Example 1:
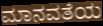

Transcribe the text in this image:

ಮಾನವತೆಯ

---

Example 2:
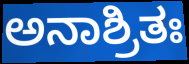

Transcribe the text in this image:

ಅನಾಶ್ರಿತಃ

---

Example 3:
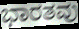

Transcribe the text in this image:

ಭಾರತವು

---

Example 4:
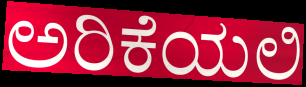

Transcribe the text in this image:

ಅರಿಕೆಯಲಿ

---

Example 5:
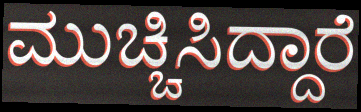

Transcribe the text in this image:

ಮುಚ್ಚಿಸಿದ್ದಾರೆ